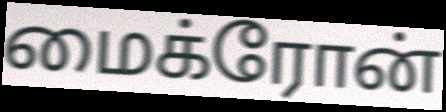
மைக்ரோன்